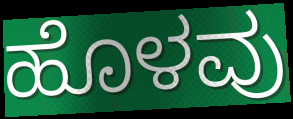
ಹೊಳವು